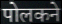
पोलकने